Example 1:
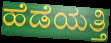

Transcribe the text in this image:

ಹೆಡೆಯತ್ತಿ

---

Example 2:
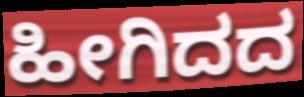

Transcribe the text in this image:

ಹೀಗಿದದ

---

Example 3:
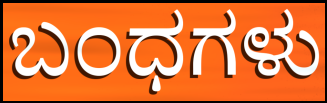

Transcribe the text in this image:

ಬಂಧಗಳು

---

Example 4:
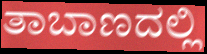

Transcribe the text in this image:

ತಾಬಾಣದಲ್ಲಿ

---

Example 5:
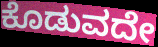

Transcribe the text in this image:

ಕೊಡುವದೇ